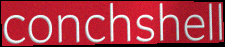
conchshell